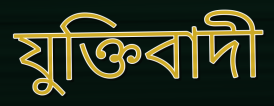
যুক্তিবাদী